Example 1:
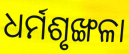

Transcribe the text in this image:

ଧର୍ମଶୃଙ୍ଖଳା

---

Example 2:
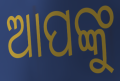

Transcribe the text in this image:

ଆପଙ୍କୁ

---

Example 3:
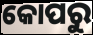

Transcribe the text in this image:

କୋପରୁ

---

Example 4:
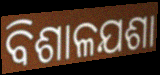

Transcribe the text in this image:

ବିଶାଳଯଶା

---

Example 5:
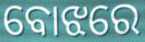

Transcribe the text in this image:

ବୋଝରେ